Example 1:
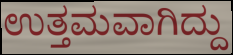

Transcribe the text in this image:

ಉತ್ತಮವಾಗಿದ್ದು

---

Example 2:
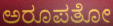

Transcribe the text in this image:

ಅರೂಪತೋ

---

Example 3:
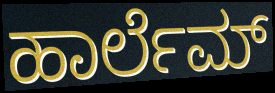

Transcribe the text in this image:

ಹಾರ್ಲೆಮ್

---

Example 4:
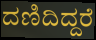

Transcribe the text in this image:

ದಣಿದಿದ್ದರೆ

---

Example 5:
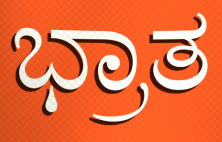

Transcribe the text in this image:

ಭ್ರಾತ